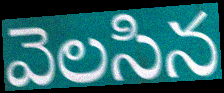
వెలసిన